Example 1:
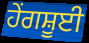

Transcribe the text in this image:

ਹੇਂਗਸ਼ੂਈ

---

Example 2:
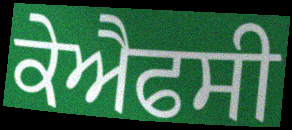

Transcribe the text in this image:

ਕੇਐਫਸੀ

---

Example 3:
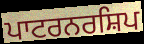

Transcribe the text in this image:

ਪਾਟਰਨਰਸ਼ਿਪ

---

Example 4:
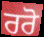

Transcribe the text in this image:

ਰਰੋ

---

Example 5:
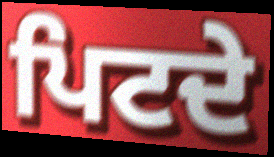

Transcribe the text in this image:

ਪਿਟਦੇ